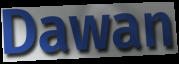
Dawan